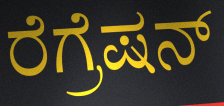
ರೆಗ್ರೆಷನ್